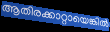
ആതിരക്കാറ്റായെങ്കിൽ